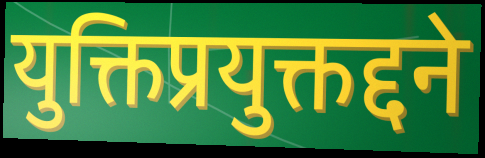
युक्तिप्रयुक्तद्दने